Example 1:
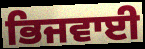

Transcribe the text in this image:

ਭਿਜਵਾਈ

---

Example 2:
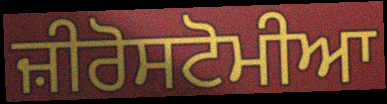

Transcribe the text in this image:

ਜ਼ੀਰੋਸਟੋਮੀਆ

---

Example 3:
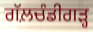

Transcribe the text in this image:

ਗੱਲ਼ਚੰਡੀਗੜ੍ਹ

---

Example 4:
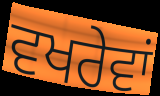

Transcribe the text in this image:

ਵਖਰੇਵਾਂ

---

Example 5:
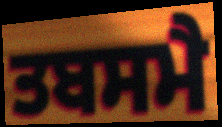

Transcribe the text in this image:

ਤਬਸਮੈ